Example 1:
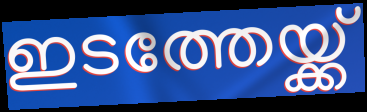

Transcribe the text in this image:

ഇടത്തേയ്ക്ക്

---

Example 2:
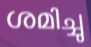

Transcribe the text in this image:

ശമിച്ചു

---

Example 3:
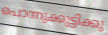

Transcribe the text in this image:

പൊന്നുക്കുട്ടിക്കു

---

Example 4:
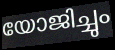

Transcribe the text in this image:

യോജിച്ചും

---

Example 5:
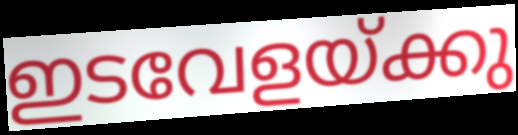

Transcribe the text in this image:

ഇടവേളയ്ക്കു